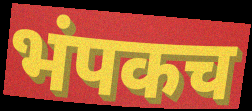
भंपकच